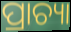
ପ୍ରାଚ୍ୟା